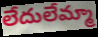
లేదులేమ్మా